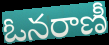
ఓనరాణీ